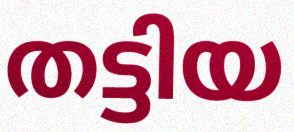
തട്ടിയ